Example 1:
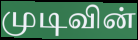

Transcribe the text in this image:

முடிவின்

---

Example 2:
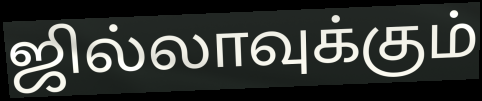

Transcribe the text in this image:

ஜில்லாவுக்கும்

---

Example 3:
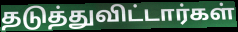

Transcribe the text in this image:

தடுத்துவிட்டார்கள்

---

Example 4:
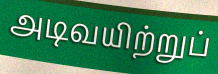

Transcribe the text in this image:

அடிவயிற்றுப்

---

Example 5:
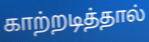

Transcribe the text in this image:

காற்றடித்தால்